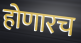
होणारच